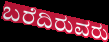
ಬರೆದಿರುವರು